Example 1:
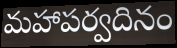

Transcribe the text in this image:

మహాపర్వదినం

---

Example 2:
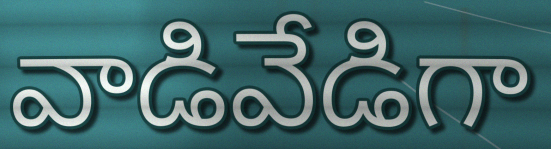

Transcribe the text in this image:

వాడివేడిగా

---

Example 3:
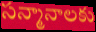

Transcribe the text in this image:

సన్మానాలకు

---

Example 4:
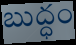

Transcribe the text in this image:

బుద్ధం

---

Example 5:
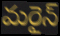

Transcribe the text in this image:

మరైన్